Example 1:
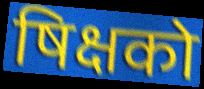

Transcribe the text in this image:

षिक्षको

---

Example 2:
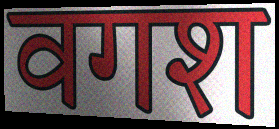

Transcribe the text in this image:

वगश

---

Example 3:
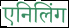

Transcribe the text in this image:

एनिलिंग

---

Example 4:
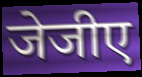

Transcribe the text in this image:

जेजीए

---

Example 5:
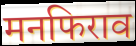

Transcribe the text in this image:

मनफिराव